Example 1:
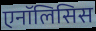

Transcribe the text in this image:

एनॉलिसिस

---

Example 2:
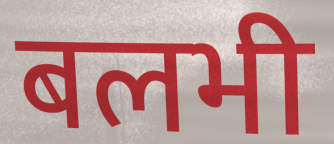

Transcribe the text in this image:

बलभी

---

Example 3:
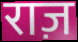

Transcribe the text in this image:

राज़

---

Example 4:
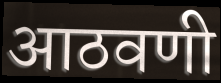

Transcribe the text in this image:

आठवणी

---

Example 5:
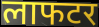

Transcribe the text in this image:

लाफटर